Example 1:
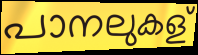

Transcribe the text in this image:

പാനലുകള്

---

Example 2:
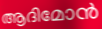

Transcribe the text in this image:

ആദിമോൻ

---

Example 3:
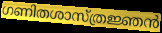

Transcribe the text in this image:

ഗണിതശാസ്ത്രജ്ഞൻ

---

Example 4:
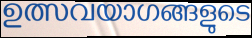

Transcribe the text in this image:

ഉത്സവയാഗങ്ങളുടെ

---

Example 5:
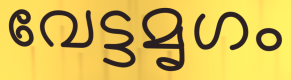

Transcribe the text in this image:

വേട്ടമൃഗം